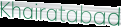
Khairatabad